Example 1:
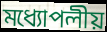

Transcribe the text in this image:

মধ্যোপলীয়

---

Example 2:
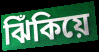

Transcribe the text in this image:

ঝিঁকিয়ে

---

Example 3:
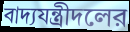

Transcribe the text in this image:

বাদ্যযন্ত্রীদলের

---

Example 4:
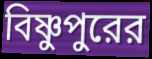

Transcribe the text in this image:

বিষ্ণুপুরের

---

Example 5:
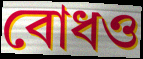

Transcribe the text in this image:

বোধও